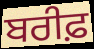
ਬਰੀਫ਼